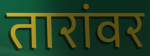
तारांवर